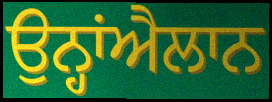
ਉਨ੍ਹਾਂਐਲਾਨ